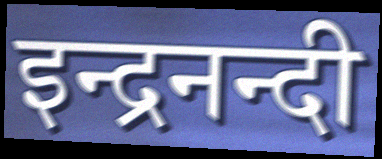
इन्द्रनन्दी